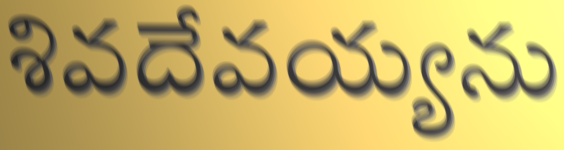
శివదేవయ్యను